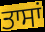
ਤਾਸਾਂ